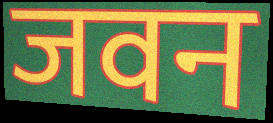
जवन